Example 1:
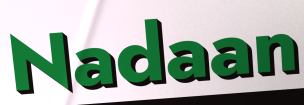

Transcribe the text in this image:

Nadaan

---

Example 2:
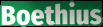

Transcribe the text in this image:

Boethius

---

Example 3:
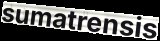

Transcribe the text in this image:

sumatrensis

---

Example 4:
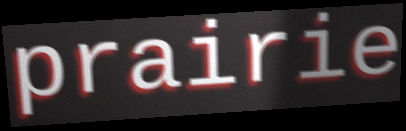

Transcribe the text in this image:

prairie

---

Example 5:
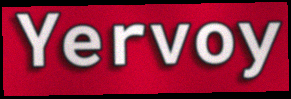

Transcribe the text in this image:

Yervoy